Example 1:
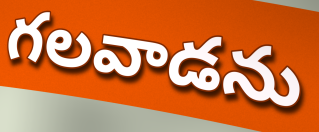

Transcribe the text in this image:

గలవాడను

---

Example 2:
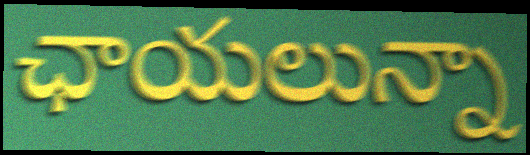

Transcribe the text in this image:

ఛాయలున్నా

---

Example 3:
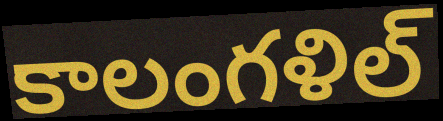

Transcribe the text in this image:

కాలంగళిల్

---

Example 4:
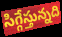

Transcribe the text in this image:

సిగ్గేస్తున్నది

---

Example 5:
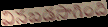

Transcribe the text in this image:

వినబడసాగింది